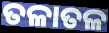
ତଳାତଳ